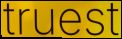
truest